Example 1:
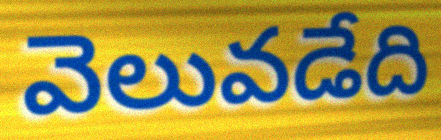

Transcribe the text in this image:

వెలువడేది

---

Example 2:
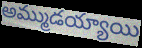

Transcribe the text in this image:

అమ్ముడయ్యాయి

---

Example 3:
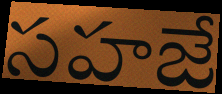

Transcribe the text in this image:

సహజే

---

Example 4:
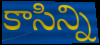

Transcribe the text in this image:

కాసిన్ని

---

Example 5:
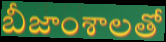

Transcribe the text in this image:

బీజాంశాలతో